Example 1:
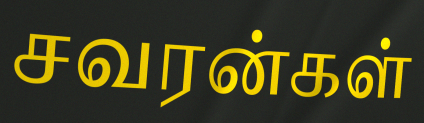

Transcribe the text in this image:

சவரன்கள்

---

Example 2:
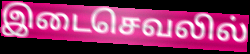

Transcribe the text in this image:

இடைசெவலில்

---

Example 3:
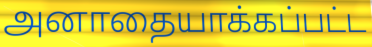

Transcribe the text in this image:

அனாதையாக்கப்பட்ட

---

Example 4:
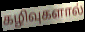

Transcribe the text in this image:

கழிவுகளால்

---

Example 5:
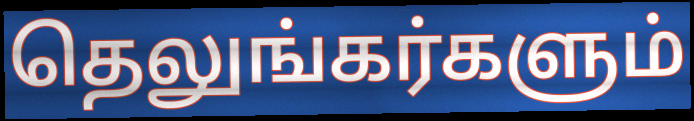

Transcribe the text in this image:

தெலுங்கர்களும்